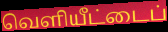
வெளியீட்டைப்